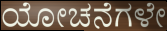
ಯೋಚನೆಗಳೇ